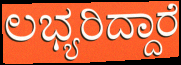
ಲಭ್ಯರಿದ್ದಾರೆ